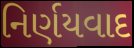
નિર્ણયવાદ